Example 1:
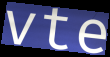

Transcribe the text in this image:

vte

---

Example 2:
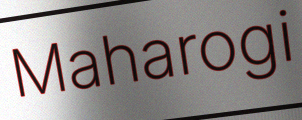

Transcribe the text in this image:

Maharogi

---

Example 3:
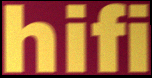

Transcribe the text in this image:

hifi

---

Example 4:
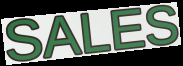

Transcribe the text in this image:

SALES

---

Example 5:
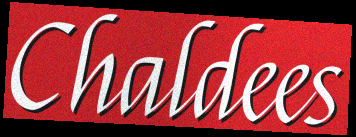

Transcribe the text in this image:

Chaldees